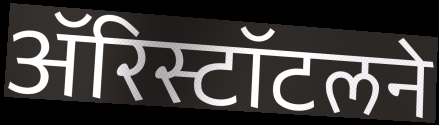
ॲरिस्टॉटलने